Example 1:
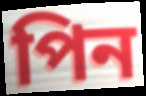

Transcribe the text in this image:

পিন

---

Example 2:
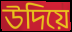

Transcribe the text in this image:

উদিয়ে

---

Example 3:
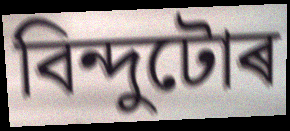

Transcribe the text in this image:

বিন্দুটোৰ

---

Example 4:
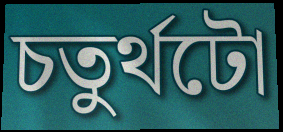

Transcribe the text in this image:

চতুৰ্থটো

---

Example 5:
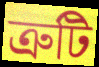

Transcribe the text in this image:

ত্ৰুটি